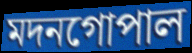
মদনগোপাল